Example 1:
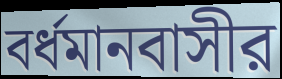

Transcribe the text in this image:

বর্ধমানবাসীর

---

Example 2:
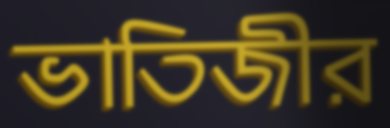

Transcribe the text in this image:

ভাতিজীর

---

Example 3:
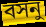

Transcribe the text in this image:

বসনু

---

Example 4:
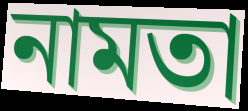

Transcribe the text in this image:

নামতা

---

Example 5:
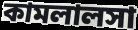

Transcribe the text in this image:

কামলালসা